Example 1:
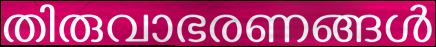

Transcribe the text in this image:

തിരുവാഭരണങ്ങൾ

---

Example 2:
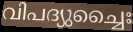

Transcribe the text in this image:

വിപദ്യുച്ചൈഃ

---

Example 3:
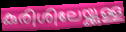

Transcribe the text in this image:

കുരിശിലേയ്ക്കുള്ള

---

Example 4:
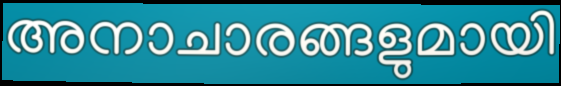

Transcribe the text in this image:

അനാചാരങ്ങളുമായി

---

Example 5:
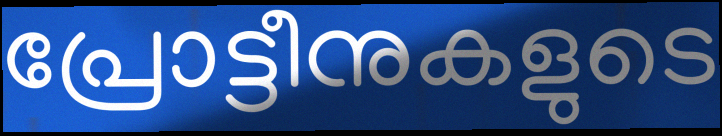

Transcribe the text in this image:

പ്രോട്ടീനുകളുടെ